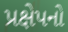
પ્રક્ષેપનો